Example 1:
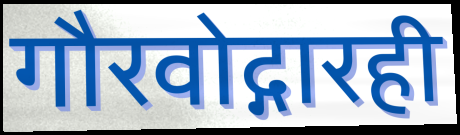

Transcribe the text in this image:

गौरवोद्गारही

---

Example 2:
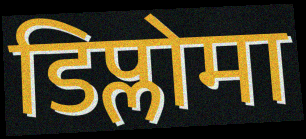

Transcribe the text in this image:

डिप्लोमा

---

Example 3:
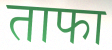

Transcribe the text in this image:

ताफा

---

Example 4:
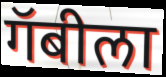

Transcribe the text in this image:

गॅबीला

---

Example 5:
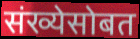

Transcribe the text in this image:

संख्येसोबत